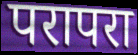
परापरा